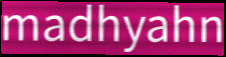
madhyahn